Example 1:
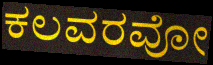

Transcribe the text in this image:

ಕಲವರವೋ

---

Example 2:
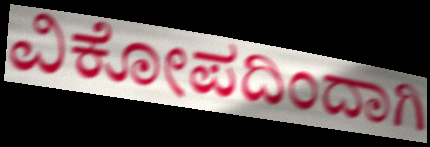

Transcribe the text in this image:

ವಿಕೋಪದಿಂದಾಗಿ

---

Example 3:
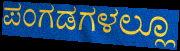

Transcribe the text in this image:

ಪಂಗಡಗಳಲ್ಲೂ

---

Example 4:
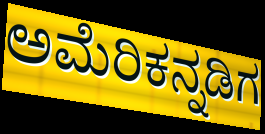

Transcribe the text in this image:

ಅಮೆರಿಕನ್ನಡಿಗ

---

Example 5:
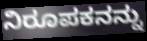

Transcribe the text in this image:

ನಿರೂಪಕನನ್ನು